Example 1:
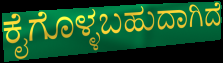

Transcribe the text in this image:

ಕೈಗೊಳ್ಳಬಹುದಾಗಿದೆ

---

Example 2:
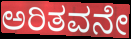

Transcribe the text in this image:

ಅರಿತವನೇ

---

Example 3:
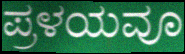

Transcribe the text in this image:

ಪ್ರಳಯವೂ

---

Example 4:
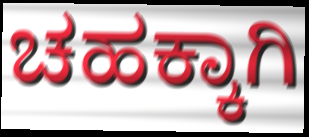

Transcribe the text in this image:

ಚಹಕ್ಕಾಗಿ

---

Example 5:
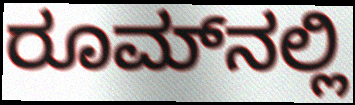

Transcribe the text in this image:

ರೂಮ್‌ನಲ್ಲಿ